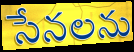
సేనలను